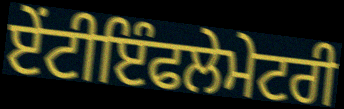
ਏੰਟੀਇੰਫਲੇਮੇਟਰੀ